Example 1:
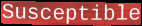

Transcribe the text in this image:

Susceptible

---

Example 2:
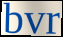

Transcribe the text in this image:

bvr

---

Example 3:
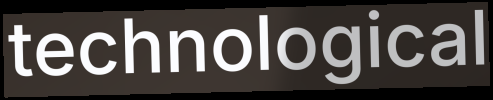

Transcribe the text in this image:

technological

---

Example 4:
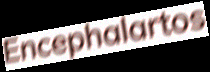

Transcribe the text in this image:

Encephalartos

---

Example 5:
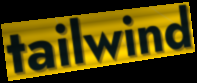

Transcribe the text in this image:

tailwind